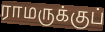
ராமருக்குப்